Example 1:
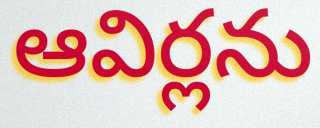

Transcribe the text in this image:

ఆవిర్లను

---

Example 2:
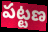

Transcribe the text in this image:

పట్టణ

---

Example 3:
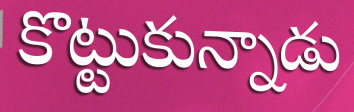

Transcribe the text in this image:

కొట్టుకున్నాడు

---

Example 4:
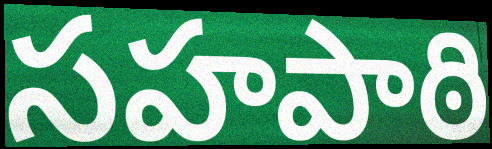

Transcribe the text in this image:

సహపాఠి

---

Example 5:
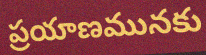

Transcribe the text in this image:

ప్రయాణమునకు